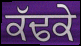
ਕੱਢਕੇ